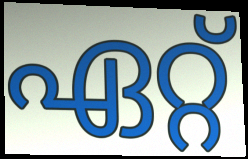
ഏറ്റ്